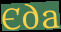
Eda